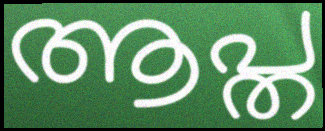
ആപ്ത